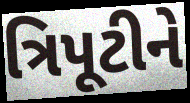
ત્રિપૂટીને